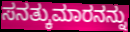
ಸನತ್ಕುಮಾರನನ್ನು